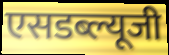
एसडब्ल्यूजी